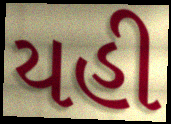
યહી